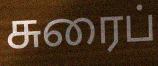
சுரைப்